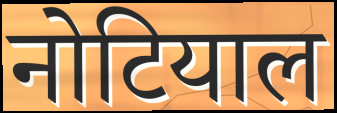
नोटियाल